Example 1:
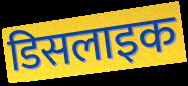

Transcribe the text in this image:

डिसलाइक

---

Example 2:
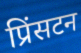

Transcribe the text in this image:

प्रिंसटन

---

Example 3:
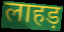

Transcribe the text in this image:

लाहड़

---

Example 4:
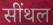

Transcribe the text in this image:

सींथल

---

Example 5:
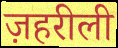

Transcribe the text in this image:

ज़हरीली